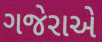
ગજેરાએ